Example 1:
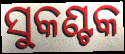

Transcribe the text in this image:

ସୁକଣ୍ଟକ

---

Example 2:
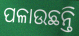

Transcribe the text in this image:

ପଳାଉଛନ୍ତି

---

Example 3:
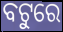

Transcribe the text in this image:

ବଟୁରେ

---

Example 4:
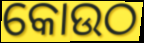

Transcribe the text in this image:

କୋଉଠ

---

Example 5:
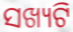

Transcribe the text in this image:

ସଖ୍ୟଟି